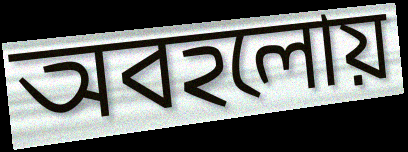
অবহলোয়